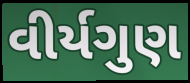
વીર્યગુણ